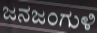
ಜನಜಂಗುಳಿ